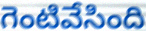
గెంటివేసింది